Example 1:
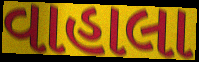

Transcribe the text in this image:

વાહાલા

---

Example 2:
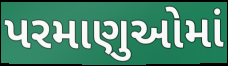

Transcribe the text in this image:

પરમાણુઓમાં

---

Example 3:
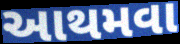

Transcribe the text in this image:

આથમવા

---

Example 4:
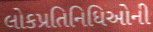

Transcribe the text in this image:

લોકપ્રતિનિધિઓની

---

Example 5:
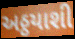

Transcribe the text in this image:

અઠ્ઠયાશી